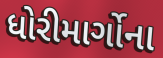
ધોરીમાર્ગોના